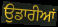
ਉੁਡਾਰੀਆਂ